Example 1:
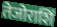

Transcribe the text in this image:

तेजोराशिं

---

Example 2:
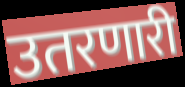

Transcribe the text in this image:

उतरणारी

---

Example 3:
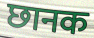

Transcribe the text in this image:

छानक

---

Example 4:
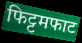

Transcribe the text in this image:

फिट्टमफाट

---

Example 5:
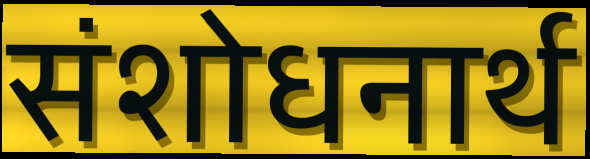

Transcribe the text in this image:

संशोधनार्थ